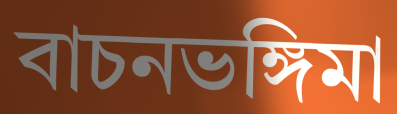
বাচনভঙ্গিমা